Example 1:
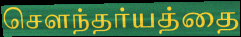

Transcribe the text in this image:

செளந்தர்யத்தை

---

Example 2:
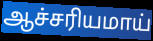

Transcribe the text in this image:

ஆச்சரியமாய்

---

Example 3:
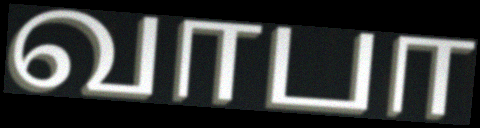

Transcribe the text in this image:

வாபா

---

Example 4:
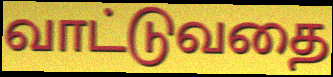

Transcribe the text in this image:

வாட்டுவதை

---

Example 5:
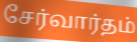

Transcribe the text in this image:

சேர்வார்தம்